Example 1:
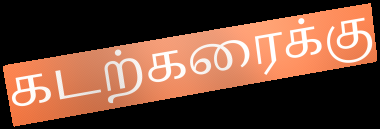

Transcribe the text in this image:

கடற்கரைக்கு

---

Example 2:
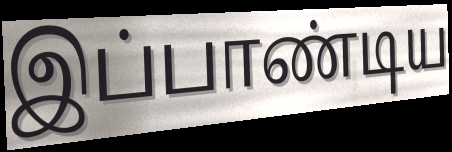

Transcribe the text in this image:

இப்பாண்டிய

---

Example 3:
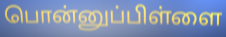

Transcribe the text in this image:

பொன்னுப்பிள்ளை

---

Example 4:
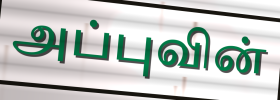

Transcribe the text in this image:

அப்புவின்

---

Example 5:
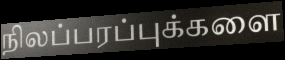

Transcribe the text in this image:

நிலப்பரப்புக்களை